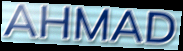
AHMAD